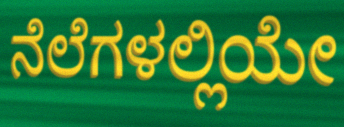
ನೆಲೆಗಳಲ್ಲಿಯೇ